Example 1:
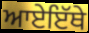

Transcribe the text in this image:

ਆਏਇੱਥੇ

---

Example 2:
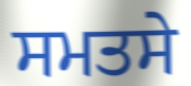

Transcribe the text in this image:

ਸਮਤਸੇ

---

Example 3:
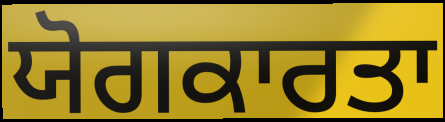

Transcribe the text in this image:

ਯੋਗਕਾਰਤਾ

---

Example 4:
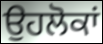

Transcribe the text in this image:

ਉਹਲੋਕਾਂ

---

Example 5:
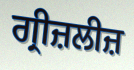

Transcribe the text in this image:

ਗ੍ਰੀਜ਼ਲੀਜ਼